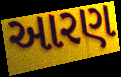
આરણ